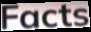
Facts